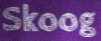
Skoog